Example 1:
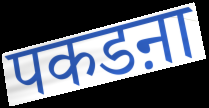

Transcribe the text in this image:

पकडऩा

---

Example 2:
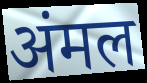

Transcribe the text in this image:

अंमल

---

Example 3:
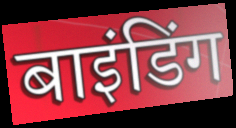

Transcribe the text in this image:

बाइंडिंग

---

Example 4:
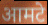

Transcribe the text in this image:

आमटे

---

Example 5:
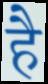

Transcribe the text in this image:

है